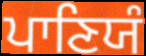
ਪਾਣਿਯੰ